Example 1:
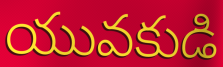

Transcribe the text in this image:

యువకుడి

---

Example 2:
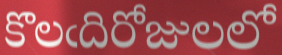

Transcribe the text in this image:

కొలఁదిరోజులలో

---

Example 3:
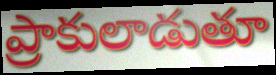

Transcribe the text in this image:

ప్రాకులాడుతూ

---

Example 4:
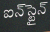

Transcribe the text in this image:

ఐన్‌స్టైన్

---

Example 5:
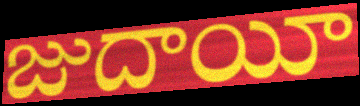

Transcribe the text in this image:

జుదాయీ